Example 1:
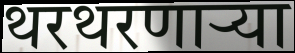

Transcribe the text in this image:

थरथरणाऱ्या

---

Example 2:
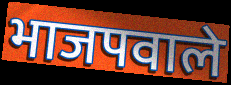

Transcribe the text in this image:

भाजपवाले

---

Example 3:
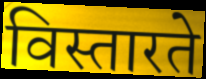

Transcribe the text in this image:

विस्तारते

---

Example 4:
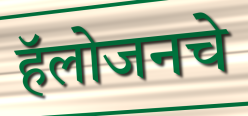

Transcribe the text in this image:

हॅलोजनचे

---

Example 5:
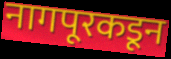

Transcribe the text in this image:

नागपूरकडून